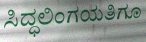
ಸಿದ್ಧಲಿಂಗಯತಿಗೂ